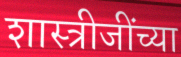
शास्त्रीजींच्या